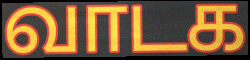
வாடக